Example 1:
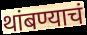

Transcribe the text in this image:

थांबण्याचं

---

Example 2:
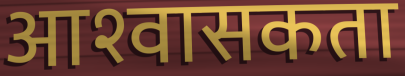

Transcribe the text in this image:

आश्वासकता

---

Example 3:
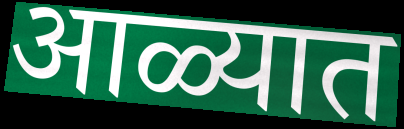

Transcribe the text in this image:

आळ्यात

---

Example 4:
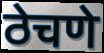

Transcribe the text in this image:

ठेचणे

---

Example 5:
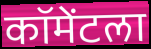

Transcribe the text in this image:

कॉमेंटला